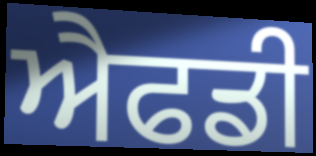
ਐਫਡੀ